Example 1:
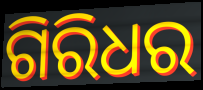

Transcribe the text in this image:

ଗିରିଧର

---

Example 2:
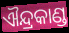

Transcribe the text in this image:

ଐନ୍ଦ୍ରକାଣ୍ଡ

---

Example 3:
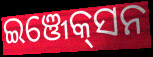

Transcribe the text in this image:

ଇଞ୍ଜେକ୍‌ସନ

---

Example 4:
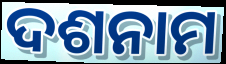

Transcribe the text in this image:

ଦଶନାମ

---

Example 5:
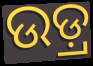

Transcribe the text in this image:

ଉଡ଼୍ର